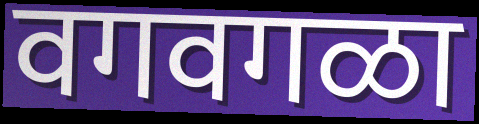
वगवगळा